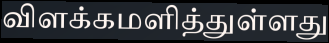
விளக்கமளித்துள்ளது